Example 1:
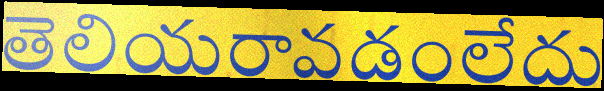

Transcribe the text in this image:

తెలియరావడంలేదు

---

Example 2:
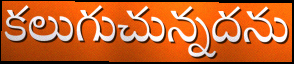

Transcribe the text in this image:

కలుగుచున్నదను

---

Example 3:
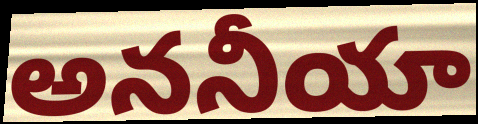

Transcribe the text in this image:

అననీయా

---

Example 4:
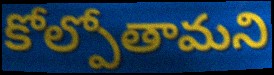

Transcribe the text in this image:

కోల్పోతామని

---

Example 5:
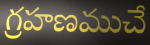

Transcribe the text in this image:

గ్రహణముచే